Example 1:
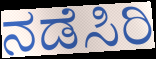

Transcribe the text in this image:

ನಡೆಸಿರಿ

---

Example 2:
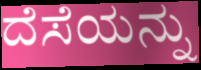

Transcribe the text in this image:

ದೆಸೆಯನ್ನು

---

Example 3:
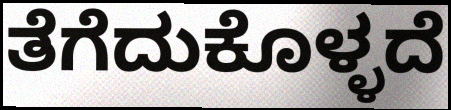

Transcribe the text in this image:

ತೆಗೆದುಕೊಳ್ಳದೆ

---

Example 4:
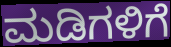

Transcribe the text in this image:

ಮಡಿಗಳಿಗೆ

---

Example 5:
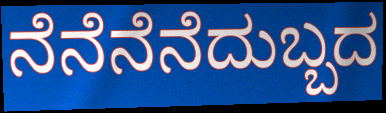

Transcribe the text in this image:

ನೆನೆನೆನೆದುಬ್ಬದ